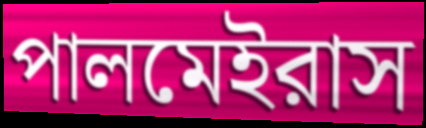
পালমেইরাস